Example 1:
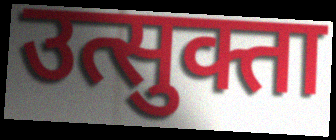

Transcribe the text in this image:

उत्सुक्ता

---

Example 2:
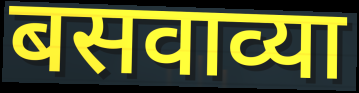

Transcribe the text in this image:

बसवाव्या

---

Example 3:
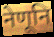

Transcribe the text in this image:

नेणूनि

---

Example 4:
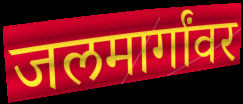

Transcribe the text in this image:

जलमार्गांवर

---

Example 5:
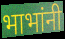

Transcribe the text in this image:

भाभांनी